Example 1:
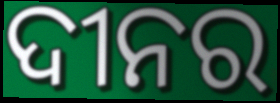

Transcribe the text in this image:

ଦୀନର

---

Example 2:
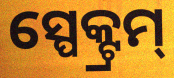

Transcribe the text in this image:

ସ୍ପେକ୍ଟ୍ରମ୍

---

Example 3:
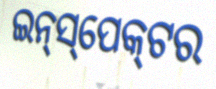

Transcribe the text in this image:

ଇନ୍‌ସ୍‌ପେକ୍‌ଟର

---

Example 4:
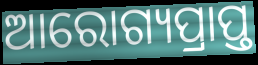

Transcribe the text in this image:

ଆରୋଗ୍ୟପ୍ରାପ୍ତ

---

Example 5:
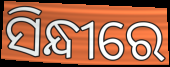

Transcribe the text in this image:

ସିନ୍ଧୀରେ